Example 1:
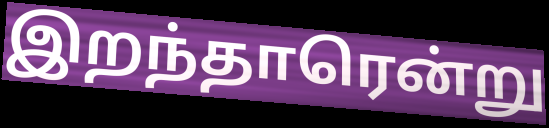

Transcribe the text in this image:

இறந்தாரென்று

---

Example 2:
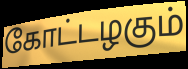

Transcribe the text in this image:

கோட்டழகும்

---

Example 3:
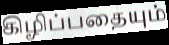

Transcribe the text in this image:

கிழிப்பதையும்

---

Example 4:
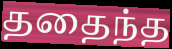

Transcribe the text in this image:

ததைந்த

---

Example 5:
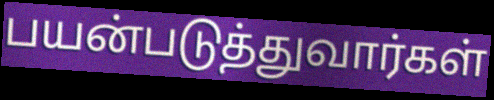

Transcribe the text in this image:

பயன்படுத்துவார்கள்